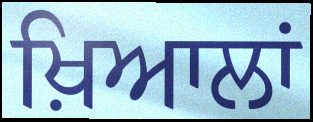
ਖ਼ਿਆਲਾਂ